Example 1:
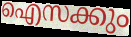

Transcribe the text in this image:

ഐസക്കും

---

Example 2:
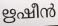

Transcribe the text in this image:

ഋഷീൻ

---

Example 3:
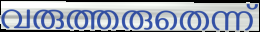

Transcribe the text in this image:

വരുത്തരുതെന്ന്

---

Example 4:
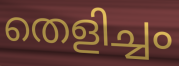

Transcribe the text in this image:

തെളിച്ചം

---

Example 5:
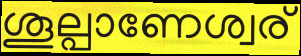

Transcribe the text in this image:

ശൂല്പാണേശ്വര്